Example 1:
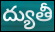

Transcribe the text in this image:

ద్యుతీ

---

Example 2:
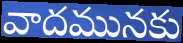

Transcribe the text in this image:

వాదమునకు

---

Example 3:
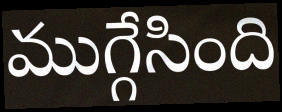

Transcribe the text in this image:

ముగ్గేసింది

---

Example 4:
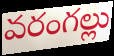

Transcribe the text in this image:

వరంగల్లు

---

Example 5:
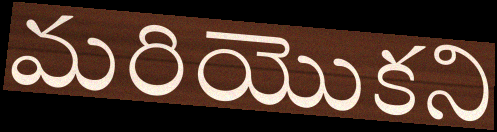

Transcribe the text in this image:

మరియొకని